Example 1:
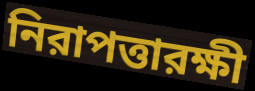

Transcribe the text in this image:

নিরাপত্তারক্ষী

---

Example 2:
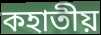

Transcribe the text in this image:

কহাতীয়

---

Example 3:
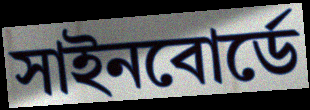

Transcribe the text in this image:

সাইনবোর্ডে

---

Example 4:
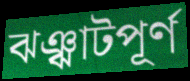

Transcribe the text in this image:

ঝঞ্ঝাটপূর্ণ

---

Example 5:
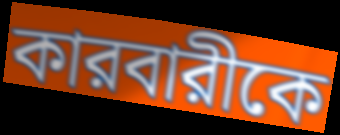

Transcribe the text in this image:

কারবারীকে